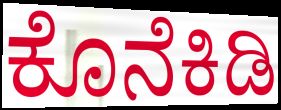
ಕೊನೆಕಿಡಿ